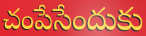
చంపేసేందుకు